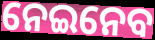
ନେଇନେବ